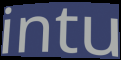
intu